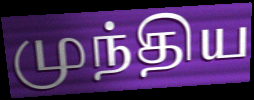
முந்திய